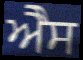
ਐੈਸ